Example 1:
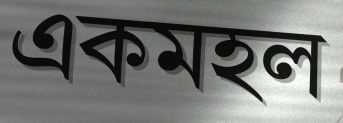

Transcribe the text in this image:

একমহল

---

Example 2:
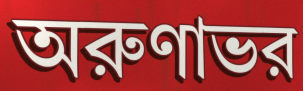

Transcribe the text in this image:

অরুণাভর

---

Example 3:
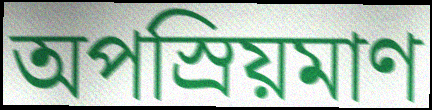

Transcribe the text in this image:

অপস্রিয়মাণ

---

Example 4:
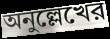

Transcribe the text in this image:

অনুল্লেখের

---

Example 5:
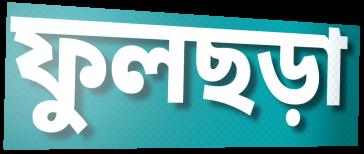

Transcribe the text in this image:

ফুলছড়া